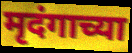
मृदंगाच्या